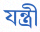
যন্ত্রী